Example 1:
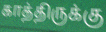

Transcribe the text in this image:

காத்திருக்கு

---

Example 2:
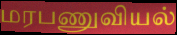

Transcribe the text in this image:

மரபணுவியல்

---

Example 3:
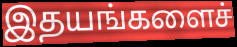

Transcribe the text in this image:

இதயங்களைச்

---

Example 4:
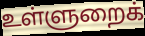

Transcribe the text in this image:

உள்ளுறைக்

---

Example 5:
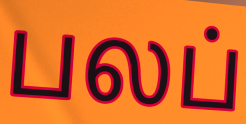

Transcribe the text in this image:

பலப்